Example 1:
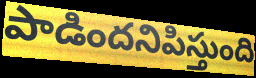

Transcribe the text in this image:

పాడిందనిపిస్తుంది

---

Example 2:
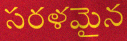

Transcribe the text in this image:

సరళమైన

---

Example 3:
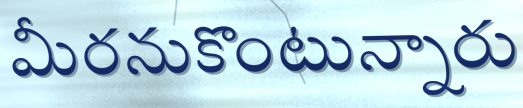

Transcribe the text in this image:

మీరనుకొంటున్నారు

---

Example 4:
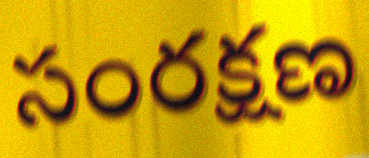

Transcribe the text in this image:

సంరక్షణ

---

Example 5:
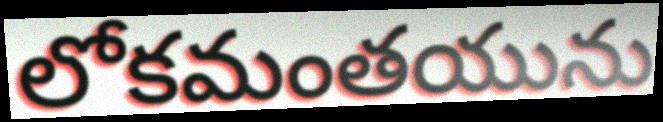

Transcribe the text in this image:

లోకమంతయును